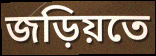
জড়িয়তে